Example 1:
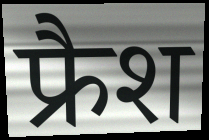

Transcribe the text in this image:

फ्रैश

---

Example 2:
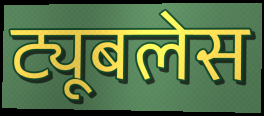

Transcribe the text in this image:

ट्यूबलेस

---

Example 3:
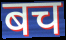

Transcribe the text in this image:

बच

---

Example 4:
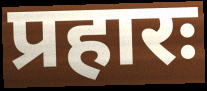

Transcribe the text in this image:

प्रहारः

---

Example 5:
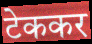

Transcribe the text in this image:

टेककर